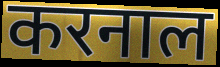
करनाल